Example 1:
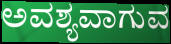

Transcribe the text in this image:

ಅವಶ್ಯವಾಗುವ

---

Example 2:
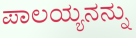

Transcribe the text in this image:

ಪಾಲಯ್ಯನನ್ನು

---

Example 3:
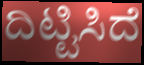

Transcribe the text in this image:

ದಿಟ್ಟಿಸಿದೆ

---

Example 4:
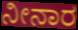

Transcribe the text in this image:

ನೀನಾರ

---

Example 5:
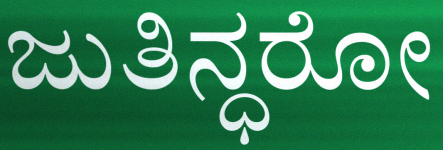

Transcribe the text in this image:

ಜುತಿನ್ಧರೋ